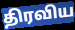
திரவிய